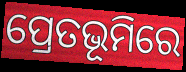
ପ୍ରେତଭୂମିରେ